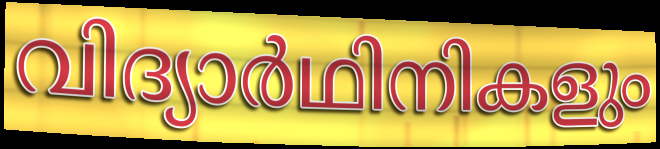
വിദ്യാർഥിനികളും